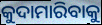
କୁଦାମାରିବାକୁ